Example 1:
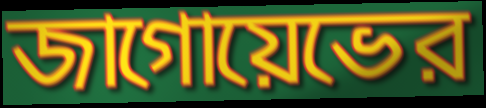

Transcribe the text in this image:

জাগোয়েভের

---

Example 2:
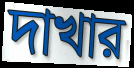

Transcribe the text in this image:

দাখার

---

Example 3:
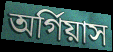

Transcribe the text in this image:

অর্গিয়াস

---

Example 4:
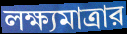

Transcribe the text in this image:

লক্ষ্যমাত্রার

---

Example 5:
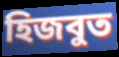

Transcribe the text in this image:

হিজবুত